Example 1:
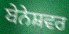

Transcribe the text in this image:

ਬੇਨੇਸ਼ਵਰ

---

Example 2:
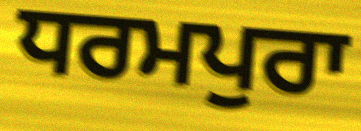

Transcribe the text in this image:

ਧਰਮਪੁਰਾ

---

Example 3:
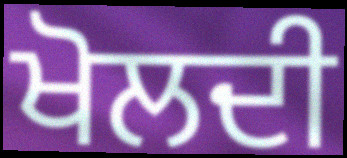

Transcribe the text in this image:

ਖੋਲਦੀ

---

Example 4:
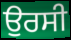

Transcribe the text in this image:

ਉਰਸੀ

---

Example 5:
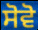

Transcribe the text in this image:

ਸੋਵੋ